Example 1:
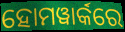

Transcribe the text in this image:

ହୋମୱାର୍କରେ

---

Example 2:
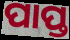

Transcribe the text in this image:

ପାପ୍ତ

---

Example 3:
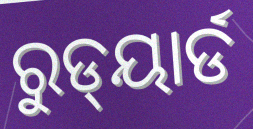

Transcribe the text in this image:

ରୁଡ୍‌ୟାର୍ଡ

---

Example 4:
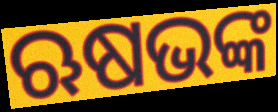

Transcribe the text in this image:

ଋଷଭଙ୍କ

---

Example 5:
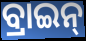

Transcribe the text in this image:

ବ୍ରାଇନ୍